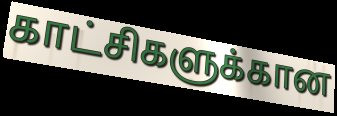
காட்சிகளுக்கான